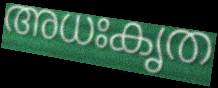
അധഃകൃത